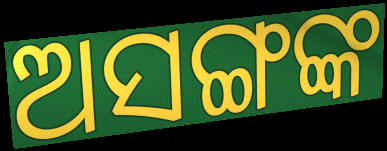
ଅସଙ୍ଗଙ୍କ